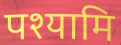
पश्यामि